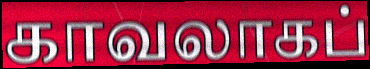
காவலாகப்